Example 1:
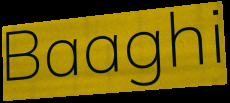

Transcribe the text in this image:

Baaghi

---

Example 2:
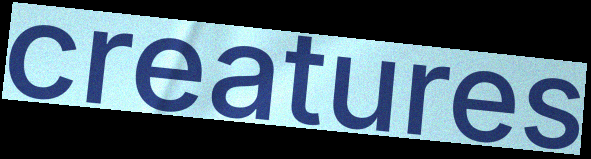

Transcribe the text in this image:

creatures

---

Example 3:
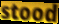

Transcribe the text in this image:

stood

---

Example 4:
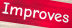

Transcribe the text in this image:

Improves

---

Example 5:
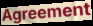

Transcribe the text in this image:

Agreement